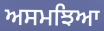
ਅਸਮਝਿਆ